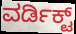
ವರ್ಡಿಕ್ಟ್